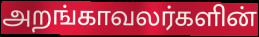
அறங்காவலர்களின்